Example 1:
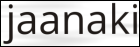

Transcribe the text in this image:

jaanaki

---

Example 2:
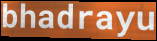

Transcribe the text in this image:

bhadrayu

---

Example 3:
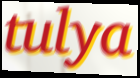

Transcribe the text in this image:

tulya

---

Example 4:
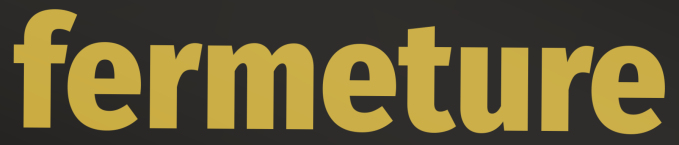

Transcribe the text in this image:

fermeture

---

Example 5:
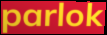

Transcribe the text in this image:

parlok